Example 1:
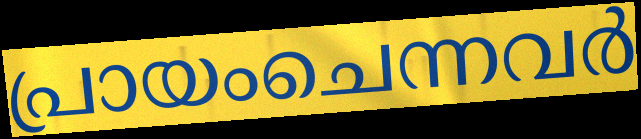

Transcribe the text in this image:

പ്രായംചെന്നവർ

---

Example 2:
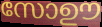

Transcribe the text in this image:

സോഊ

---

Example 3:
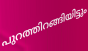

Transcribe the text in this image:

പുറത്തിറങ്ങിയിട്ടും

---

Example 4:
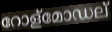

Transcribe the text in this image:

റോള്മോഡല്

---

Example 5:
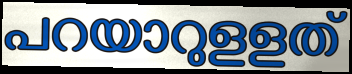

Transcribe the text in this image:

പറയാറുളളത്